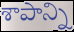
శాపాన్ని